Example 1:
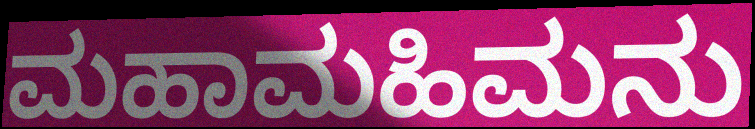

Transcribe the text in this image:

ಮಹಾಮಹಿಮನು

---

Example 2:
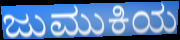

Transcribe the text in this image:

ಜುಮುಕಿಯ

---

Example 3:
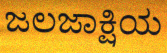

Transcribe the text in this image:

ಜಲಜಾಕ್ಷಿಯ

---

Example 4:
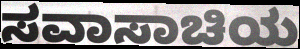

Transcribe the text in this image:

ಸವಾಸಾಚಿಯ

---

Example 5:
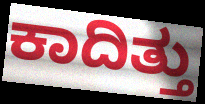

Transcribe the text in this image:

ಕಾದಿತ್ತು